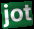
jot